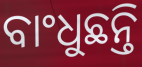
ବାଂଧୁଛନ୍ତି